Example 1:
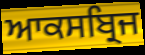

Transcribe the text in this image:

ਆਕਸਬ੍ਰਿਜ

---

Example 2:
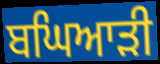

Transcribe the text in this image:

ਬਘਿਆੜੀ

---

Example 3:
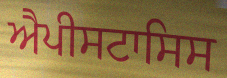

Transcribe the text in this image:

ਐਪੀਸਟਾਸਿਸ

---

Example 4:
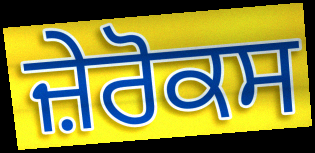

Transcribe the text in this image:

ਜ਼ੇਰੋਕਸ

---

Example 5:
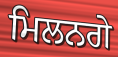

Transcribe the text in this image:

ਮਿਲਨਗੇ